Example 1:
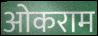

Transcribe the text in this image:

ओकराम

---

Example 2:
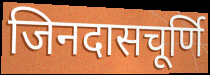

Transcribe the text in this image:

जिनदासचूर्णि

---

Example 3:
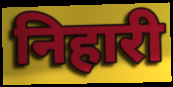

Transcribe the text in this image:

निहारी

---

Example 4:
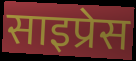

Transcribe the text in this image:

साइप्रेस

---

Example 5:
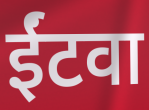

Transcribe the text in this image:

ईंटवा